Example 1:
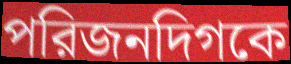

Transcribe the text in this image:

পরিজনদিগকে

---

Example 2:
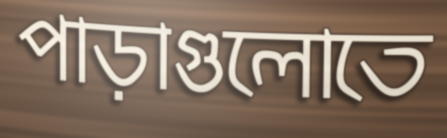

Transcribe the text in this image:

পাড়াগুলোতে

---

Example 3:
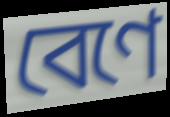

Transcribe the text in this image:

বেণে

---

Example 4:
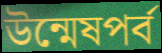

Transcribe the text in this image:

উন্মেষপর্ব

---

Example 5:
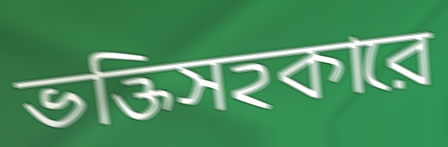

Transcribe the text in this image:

ভক্তিসহকারে